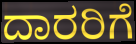
ದಾರರಿಗೆ